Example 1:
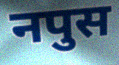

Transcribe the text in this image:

नपुस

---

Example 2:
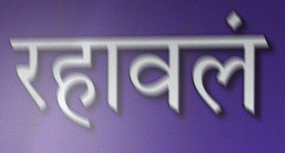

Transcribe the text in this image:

रहावलं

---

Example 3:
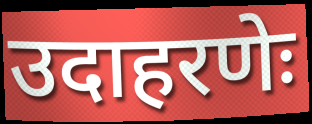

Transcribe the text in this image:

उदाहरणेः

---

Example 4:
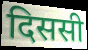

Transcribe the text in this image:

दिससी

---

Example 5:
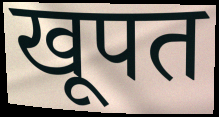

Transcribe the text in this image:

खूपत